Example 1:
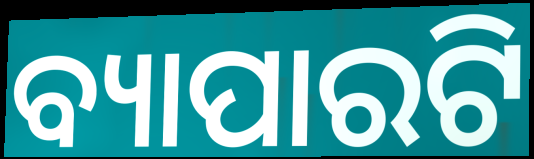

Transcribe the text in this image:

ବ୍ୟାପାରଟି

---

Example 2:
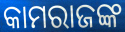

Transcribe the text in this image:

କାମରାଜଙ୍କ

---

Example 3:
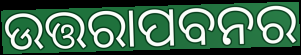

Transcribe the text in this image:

ଉତ୍ତରାପବନର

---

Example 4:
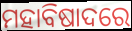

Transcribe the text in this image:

ମହାବିଷାଦରେ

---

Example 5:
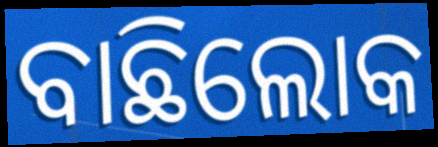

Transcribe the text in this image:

ବାଛିଲୋକ